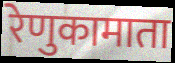
रेणुकामाता